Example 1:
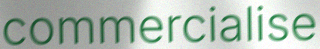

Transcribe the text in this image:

commercialise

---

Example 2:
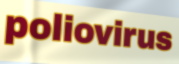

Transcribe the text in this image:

poliovirus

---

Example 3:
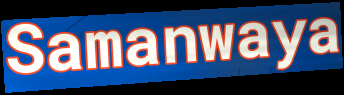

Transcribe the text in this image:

Samanwaya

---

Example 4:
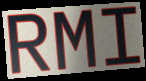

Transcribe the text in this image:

RMI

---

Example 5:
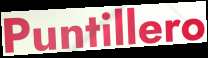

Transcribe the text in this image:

Puntillero